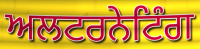
ਅਲਟਰਨੇਟਿੰਗ